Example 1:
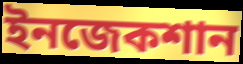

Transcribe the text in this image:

ইনজেকশান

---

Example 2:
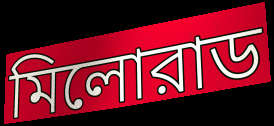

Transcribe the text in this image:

মিলোরাড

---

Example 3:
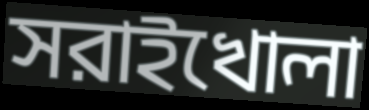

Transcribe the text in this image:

সরাইখোলা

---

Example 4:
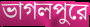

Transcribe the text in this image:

ভাগলপুরে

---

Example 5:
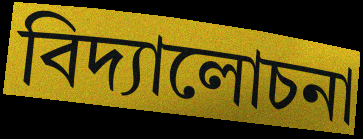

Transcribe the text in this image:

বিদ্যালোচনা